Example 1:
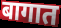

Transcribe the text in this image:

बागात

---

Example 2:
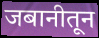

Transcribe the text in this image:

जबानीतून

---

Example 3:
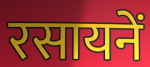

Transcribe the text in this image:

रसायनें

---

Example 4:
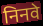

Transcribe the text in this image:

निनवे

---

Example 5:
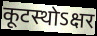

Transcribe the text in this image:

कूटस्थोऽक्षर